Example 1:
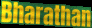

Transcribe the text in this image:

Bharathan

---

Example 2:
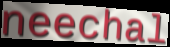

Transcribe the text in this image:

neechal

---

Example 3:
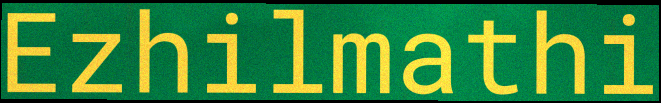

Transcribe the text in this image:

Ezhilmathi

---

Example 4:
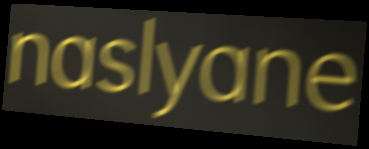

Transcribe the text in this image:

naslyane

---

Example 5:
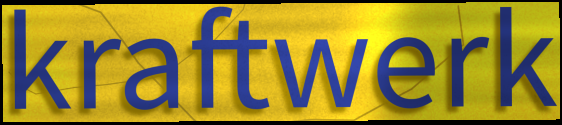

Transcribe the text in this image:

kraftwerk